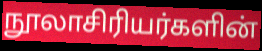
நூலாசிரியர்களின்